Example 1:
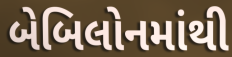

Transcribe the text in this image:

બેબિલોનમાંથી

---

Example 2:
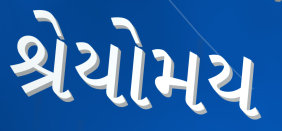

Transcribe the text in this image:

શ્રેયોમય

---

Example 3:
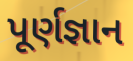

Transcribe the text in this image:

પૂર્ણજ્ઞાન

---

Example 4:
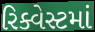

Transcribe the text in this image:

રિક્વેસ્ટમાં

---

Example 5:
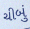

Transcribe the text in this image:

ચીબું